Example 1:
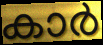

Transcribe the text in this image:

കാർ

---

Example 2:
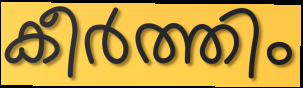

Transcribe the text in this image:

കീർത്തിം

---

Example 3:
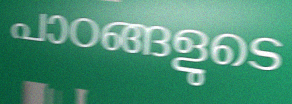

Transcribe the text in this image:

പാഠങ്ങളുടെ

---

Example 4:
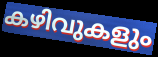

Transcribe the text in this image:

കഴിവുകളും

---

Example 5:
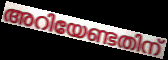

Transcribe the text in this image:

അറിയേണ്ടതിന്